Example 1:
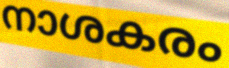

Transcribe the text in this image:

നാശകരം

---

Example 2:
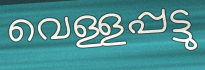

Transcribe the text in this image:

വെള്ളപ്പട്ടു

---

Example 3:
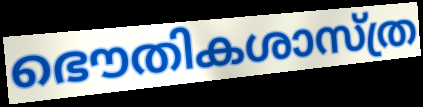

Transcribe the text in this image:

ഭൌതികശാസ്ത്ര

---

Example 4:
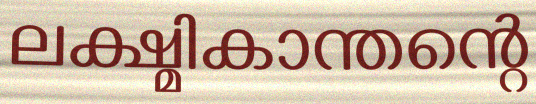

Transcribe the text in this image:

ലക്ഷ്മികാന്തന്റെ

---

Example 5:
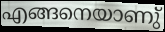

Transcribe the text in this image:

എങ്ങനെയാണു്